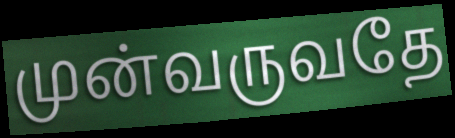
முன்வருவதே